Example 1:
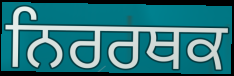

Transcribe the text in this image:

ਨਿਰਰਥਕ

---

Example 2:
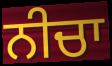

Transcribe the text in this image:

ਨੀਚਾ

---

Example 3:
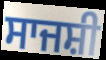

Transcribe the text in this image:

ਸਾਜਸ਼ੀ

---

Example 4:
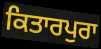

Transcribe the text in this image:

ਕਿਤਾਰਪੁਰਾ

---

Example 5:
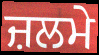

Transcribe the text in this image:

ਜ਼ਲਮੇ